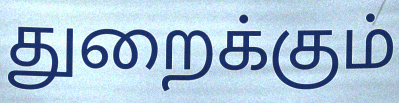
துறைக்கும்